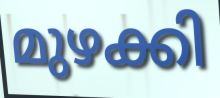
മുഴക്കി